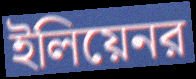
ইলিয়েনর